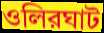
ওলিরঘাট